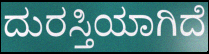
ದುರಸ್ತಿಯಾಗಿದೆ